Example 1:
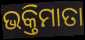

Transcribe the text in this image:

ଭକ୍ତିମାତା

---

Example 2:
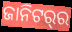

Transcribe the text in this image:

ଜାନିଟର୍‌ର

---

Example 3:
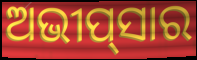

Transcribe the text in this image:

ଅଭୀପ୍‌ସାର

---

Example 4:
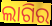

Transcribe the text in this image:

ଲାଗିର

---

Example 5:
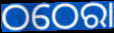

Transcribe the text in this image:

ଠଠେରା